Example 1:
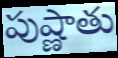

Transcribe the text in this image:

పుష్ణాతు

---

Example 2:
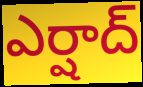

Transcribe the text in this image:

ఎర్షాద్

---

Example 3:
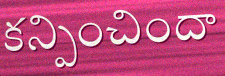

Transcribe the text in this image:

కన్పించిందా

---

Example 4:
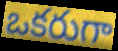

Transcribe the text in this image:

ఒకరుగా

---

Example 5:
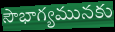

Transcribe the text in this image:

సౌభాగ్యమునకు